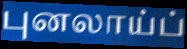
புனலாய்ப்